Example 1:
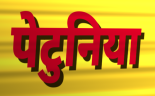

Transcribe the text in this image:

पेटुनिया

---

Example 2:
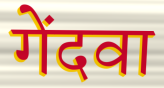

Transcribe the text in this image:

गेंदवा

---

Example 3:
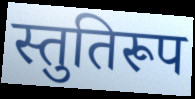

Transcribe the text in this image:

स्तुतिरूप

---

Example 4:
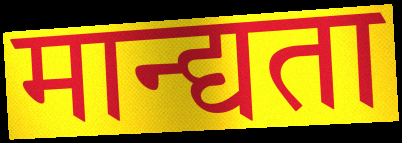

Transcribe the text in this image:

मान्द्यता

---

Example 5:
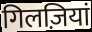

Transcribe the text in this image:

गिलज़ियां